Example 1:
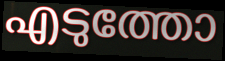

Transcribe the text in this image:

എടുത്തോ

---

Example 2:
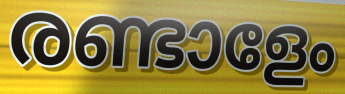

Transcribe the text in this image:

രണ്ടാളേം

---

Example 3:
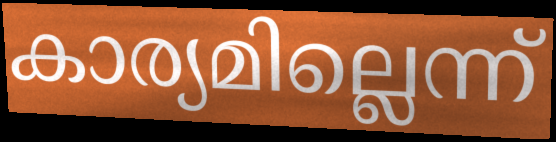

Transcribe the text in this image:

കാര്യമില്ലെന്ന്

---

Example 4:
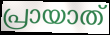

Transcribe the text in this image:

പ്രായാത്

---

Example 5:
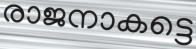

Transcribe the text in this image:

രാജനാകട്ടെ